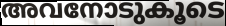
അവനോടുകൂടെ